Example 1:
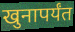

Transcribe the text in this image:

खुनापर्यंत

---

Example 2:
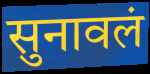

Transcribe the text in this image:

सुनावलं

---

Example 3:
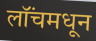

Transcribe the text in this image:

लॉंचमधून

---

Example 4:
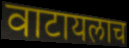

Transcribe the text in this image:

वाटायलाच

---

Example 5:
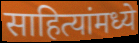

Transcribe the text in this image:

साहित्यांमध्ये